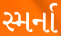
સ્મર્ના